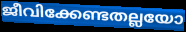
ജീവിക്കേണ്ടതല്ലയോ